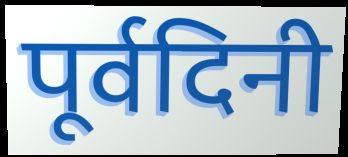
पूर्वदिनी